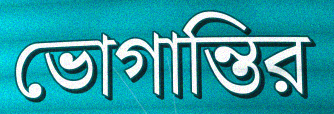
ভোগান্তির